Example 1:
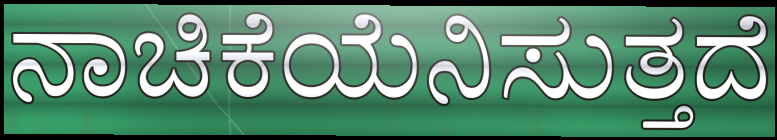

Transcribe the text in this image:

ನಾಚಿಕೆಯೆನಿಸುತ್ತದೆ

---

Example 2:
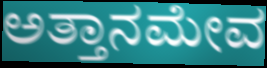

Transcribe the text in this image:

ಅತ್ತಾನಮೇವ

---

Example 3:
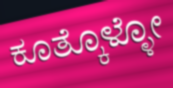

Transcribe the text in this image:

ಕೂತ್ಕೊಳ್ಳೋ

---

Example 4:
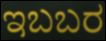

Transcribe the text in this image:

ಇಬಬರ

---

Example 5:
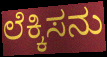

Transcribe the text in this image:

ಲೆಕ್ಕಿಸನು